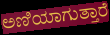
ಅಣಿಯಾಗುತ್ತಾರೆ